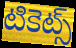
టికెట్స్